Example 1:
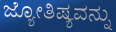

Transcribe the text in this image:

ಜ್ಯೋತಿಷ್ಯವನ್ನು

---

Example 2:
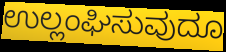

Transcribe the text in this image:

ಉಲ್ಲಂಘಿಸುವುದೂ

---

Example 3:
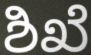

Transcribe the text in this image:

ಶಿಖೆ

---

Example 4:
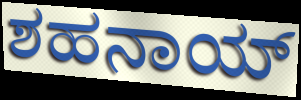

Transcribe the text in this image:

ಶಹನಾಯ್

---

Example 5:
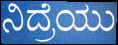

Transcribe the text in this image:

ನಿದ್ರೆಯು